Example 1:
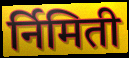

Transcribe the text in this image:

र्निमिती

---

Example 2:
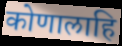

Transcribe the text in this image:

कोणालाहि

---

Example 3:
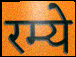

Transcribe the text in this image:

रम्ये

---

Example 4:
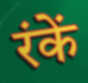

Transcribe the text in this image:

रंकें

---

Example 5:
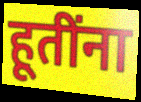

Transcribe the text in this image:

हूतींना